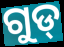
ଗୁଡ୍